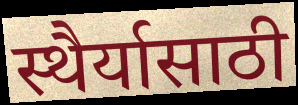
स्थैर्यासाठी